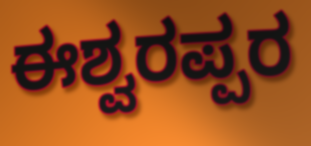
ಈಶ್ವರಪ್ಪರ